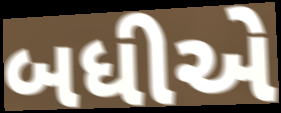
બધીએ